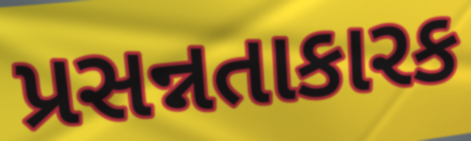
પ્રસન્નતાકારક